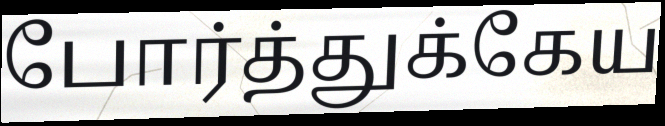
போர்த்துக்கேய